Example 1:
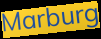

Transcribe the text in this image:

Marburg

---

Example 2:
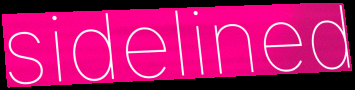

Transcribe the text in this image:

sidelined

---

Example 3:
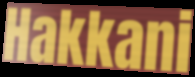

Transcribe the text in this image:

Hakkani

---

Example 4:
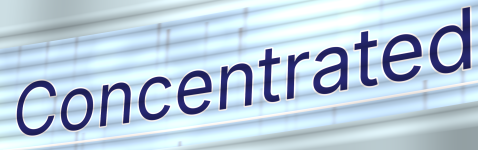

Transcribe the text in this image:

Concentrated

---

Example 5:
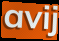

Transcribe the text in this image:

avij